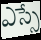
ఎస్సే